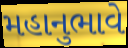
મહાનુભાવે